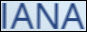
IANA